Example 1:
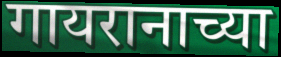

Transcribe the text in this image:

गायरानाच्या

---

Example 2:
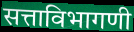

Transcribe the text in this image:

सत्ताविभागणी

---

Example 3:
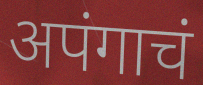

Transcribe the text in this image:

अपंगाचं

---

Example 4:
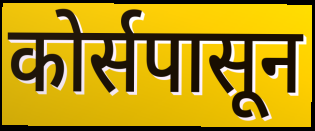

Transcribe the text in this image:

कोर्सपासून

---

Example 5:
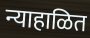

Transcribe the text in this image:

न्याहाळित